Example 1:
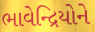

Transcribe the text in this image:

ભાવેન્દ્રિયોને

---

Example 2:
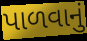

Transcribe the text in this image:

પાળવાનું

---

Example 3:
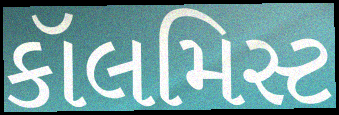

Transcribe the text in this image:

કૉલમિસ્ટ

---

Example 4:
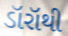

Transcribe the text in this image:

ડૉરૉથી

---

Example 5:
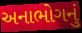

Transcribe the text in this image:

અનાભોગનું